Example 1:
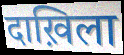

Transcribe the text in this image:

दाख़िला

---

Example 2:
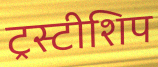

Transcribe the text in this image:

ट्रस्टीशिप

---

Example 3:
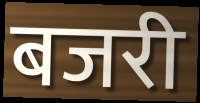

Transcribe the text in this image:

बजरी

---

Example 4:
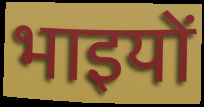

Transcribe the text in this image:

भाइयों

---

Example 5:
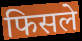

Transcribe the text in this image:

फिसले